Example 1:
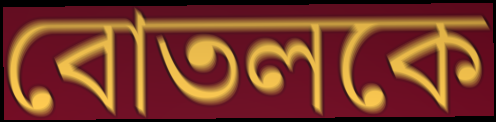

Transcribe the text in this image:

বোতলকে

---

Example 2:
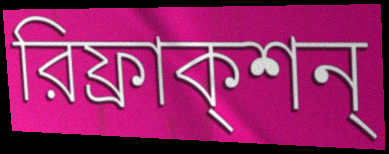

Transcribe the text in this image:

রিফ্রাক্শন্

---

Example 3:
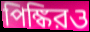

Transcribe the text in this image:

পিঙ্কিরও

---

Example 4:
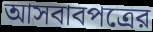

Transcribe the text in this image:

আসবাবপত্রের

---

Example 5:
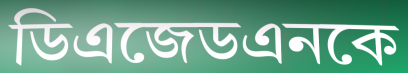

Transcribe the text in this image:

ডিএজেডএনকে